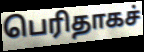
பெரிதாகச்